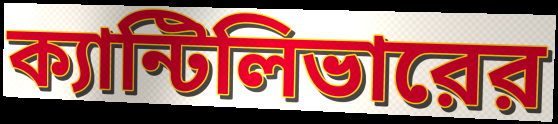
ক্যান্টিলিভারের